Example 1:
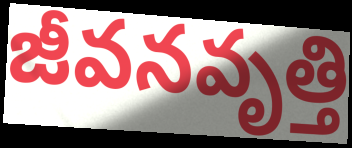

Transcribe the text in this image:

జీవనవృత్తి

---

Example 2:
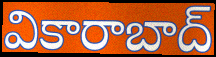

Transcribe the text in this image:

వికారాబాద్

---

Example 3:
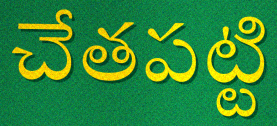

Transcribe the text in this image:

చేతపట్టి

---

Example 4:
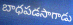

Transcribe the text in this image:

బాధపడసాగాడు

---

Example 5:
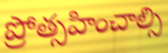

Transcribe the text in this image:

ప్రోత్సహించాల్సి